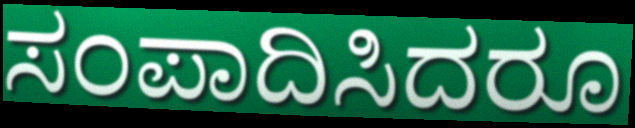
ಸಂಪಾದಿಸಿದರೂ